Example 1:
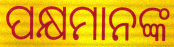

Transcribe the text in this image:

ପକ୍ଷମାନଙ୍କ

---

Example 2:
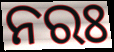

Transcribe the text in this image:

ନରଃ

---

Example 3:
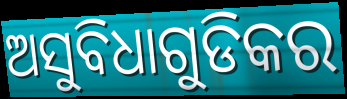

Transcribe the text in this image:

ଅସୁବିଧାଗୁଡିକର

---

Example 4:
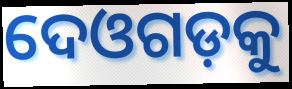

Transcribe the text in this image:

ଦେଓଗଡ଼କୁ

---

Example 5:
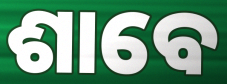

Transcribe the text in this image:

ଶାବେ